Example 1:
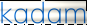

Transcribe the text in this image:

kadam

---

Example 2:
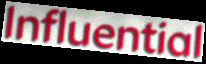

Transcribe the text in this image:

Influential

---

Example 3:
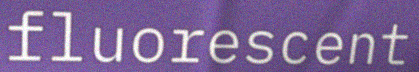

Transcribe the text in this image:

fluorescent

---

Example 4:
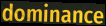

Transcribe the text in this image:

dominance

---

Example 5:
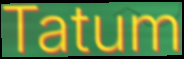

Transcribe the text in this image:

Tatum